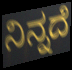
ನಿನ್ನದೆ